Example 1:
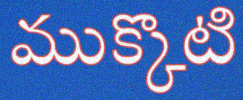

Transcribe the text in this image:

ముక్కొటి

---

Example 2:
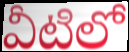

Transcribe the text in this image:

వీటిలో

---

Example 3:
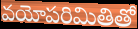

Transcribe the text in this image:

వయోపరిమితితో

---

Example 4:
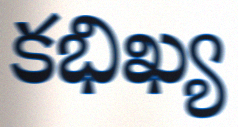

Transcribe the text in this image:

కభిఖ్య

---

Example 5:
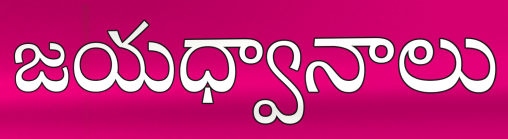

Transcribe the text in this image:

జయధ్వానాలు